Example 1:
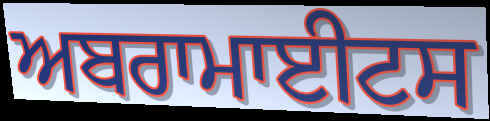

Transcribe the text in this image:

ਅਬਰਾਮਾਈਟਸ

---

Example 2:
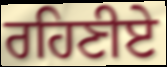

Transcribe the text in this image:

ਰਹਿਣੀਏ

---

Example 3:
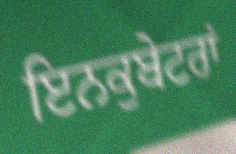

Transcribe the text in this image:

ਇਨਕੁਬੇਟਰਾਂ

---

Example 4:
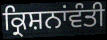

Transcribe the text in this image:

ਕ੍ਰਿਸ਼ਨਾਂਵੰਤੀ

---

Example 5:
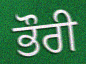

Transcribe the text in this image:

ਭੌਰੀ